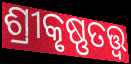
ଶ୍ରୀକୃଷ୍ଣତତ୍ତ୍ଵ